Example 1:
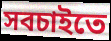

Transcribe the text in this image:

সবচাইতে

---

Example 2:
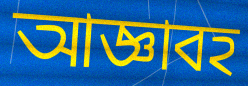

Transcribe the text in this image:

আজ্ঞাবহ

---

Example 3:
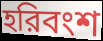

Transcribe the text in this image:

হরিবংশ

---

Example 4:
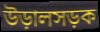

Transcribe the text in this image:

উড়ালসড়ক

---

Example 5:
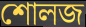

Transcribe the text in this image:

শোলজ